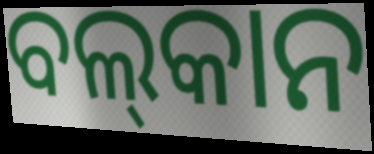
ବଲ୍‌କାନ